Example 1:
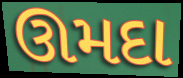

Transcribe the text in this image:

ઊમદા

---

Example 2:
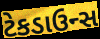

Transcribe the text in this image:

ટેકડાઉન્સ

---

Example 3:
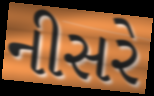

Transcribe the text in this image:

નીસરે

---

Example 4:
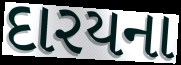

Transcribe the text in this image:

દારયના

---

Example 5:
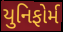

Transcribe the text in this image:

યુનિફોર્મ